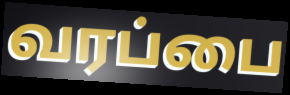
வரப்பை